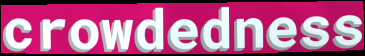
crowdedness